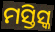
ମସ୍ତିସ୍କ